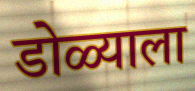
डोळ्याला